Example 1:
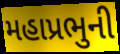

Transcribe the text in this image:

મહાપ્રભુની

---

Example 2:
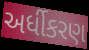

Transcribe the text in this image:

અર્ધીકરણ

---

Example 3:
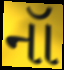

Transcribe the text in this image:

નૉ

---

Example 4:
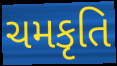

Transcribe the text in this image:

ચમકૃતિ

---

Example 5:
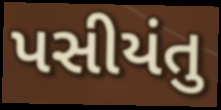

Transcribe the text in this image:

પસીયંતુ